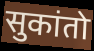
सुकांतो